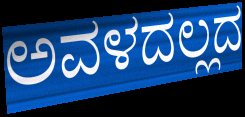
ಅವಳದಲ್ಲದ